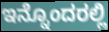
ಇನ್ನೊಂದರಲ್ಲಿ